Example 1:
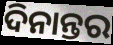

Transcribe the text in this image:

ଦିନାନ୍ତର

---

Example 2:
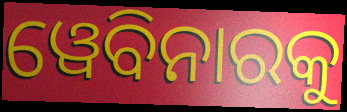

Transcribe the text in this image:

ୱେବିନାରକୁ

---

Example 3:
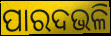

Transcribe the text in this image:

ପାରଦଭଳି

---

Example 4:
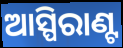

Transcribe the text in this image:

ଆସ୍ପିରାଣ୍ଟ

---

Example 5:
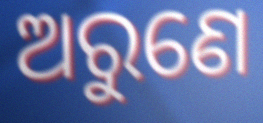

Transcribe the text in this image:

ଅରୁଣେ